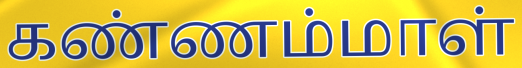
கண்ணம்மாள்